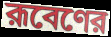
রূবেণের